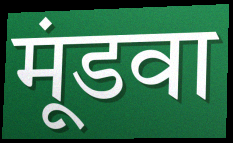
मूंडवा